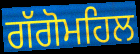
ਗੱਗੋਮਹਿਲ